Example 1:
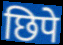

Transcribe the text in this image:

छिपे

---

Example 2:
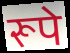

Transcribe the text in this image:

रूपे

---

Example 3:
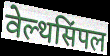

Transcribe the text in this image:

वेल्थसिंपल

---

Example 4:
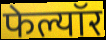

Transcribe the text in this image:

फेल्यॉर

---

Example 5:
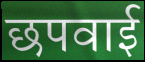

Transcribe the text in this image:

छपवाई